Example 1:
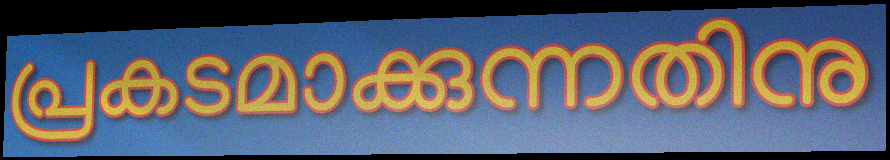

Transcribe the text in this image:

പ്രകടമാക്കുന്നതിനു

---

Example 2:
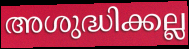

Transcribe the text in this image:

അശുദ്ധിക്കല്ല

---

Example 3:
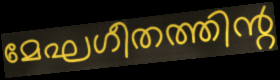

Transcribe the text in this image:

മേഘഗീതത്തിന്റ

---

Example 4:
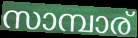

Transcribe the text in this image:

സാമ്പാര്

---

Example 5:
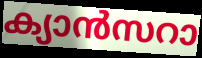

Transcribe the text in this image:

ക്യാൻസറാ